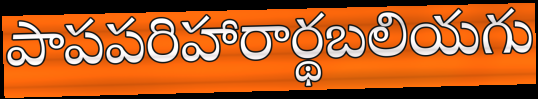
పాపపరిహారార్థబలియగు